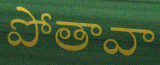
పోతావా